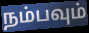
நம்பவும்